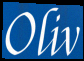
Oliv